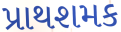
પ્રાથશમક